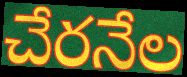
చేరనేల